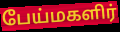
பேய்மகளிர்